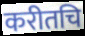
करीतचि